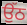
ਉੱਠ